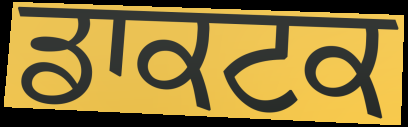
ਡਾਕਟਕ